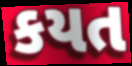
કયત